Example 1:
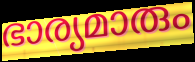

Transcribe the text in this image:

ഭാര്യമാരും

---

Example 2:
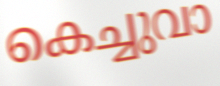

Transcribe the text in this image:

കെച്ചുവാ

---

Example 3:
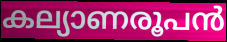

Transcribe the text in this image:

കല്യാണരൂപൻ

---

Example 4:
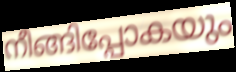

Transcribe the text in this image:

നീങ്ങിപ്പോകയും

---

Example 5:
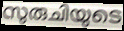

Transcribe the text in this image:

സുരുചിയുടെ